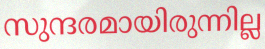
സുന്ദരമായിരുന്നില്ല